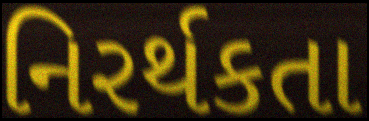
નિરર્થકતા